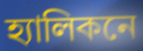
হ্যালিকনে